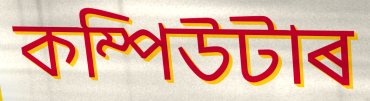
কম্পিউটাৰ